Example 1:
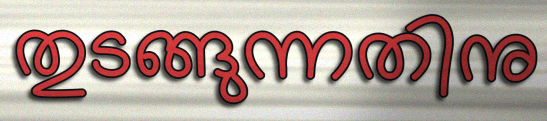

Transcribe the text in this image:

തുടങ്ങുന്നതിനു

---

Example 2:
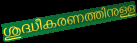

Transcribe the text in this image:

ശുദ്ധീകരണത്തിനുള്ള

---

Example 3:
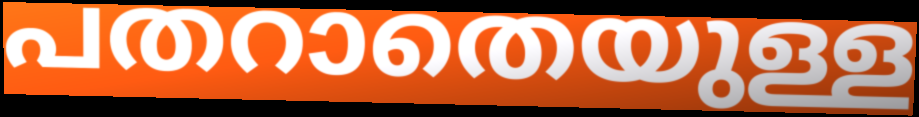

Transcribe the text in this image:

പതറാതെയുള്ള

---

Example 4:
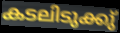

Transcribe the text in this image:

കടലിടുക്കു്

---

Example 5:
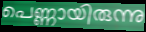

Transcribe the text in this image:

പെണ്ണായിരുന്നു